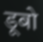
डूबो